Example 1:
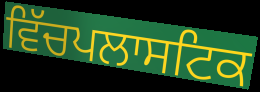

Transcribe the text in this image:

ਵਿੱਚਪਲਾਸਟਿਕ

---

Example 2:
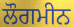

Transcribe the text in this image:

ਲੌਗਮੀਨ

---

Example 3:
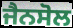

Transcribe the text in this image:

ਜੈਨਸੋਲ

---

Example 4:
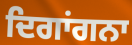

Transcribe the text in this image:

ਦਿਗਾਂਗਨਾ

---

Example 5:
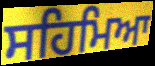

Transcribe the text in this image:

ਸਹਿਮਿਆ